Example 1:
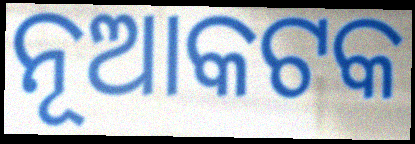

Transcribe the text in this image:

ନୂଆକଟକ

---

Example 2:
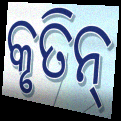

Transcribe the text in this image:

କୃତିନ୍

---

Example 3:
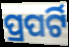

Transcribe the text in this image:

ପ୍ରପର୍ଟି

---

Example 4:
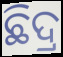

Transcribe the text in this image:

ଛିଦ୍ର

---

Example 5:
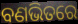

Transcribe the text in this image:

ବଣଭିତରେ